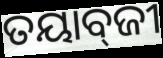
ତୟାବ୍‌ଜୀ